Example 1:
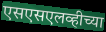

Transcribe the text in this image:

एसएसएलव्हीच्या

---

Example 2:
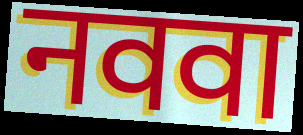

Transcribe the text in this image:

नववा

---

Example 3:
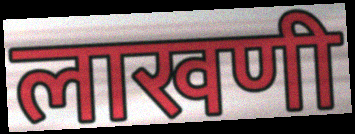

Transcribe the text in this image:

लाखणी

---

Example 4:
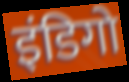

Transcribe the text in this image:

इंडिगो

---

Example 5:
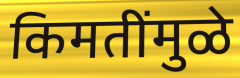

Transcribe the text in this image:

किमतींमुळे